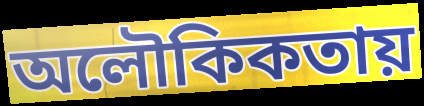
অলৌকিকতায়